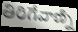
తిరిగేవాణ్ని